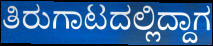
ತಿರುಗಾಟದಲ್ಲಿದ್ದಾಗ